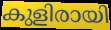
കുളിരായി